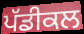
ਪੱਡੀਕਲ